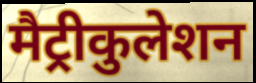
मैट्रीकुलेशन